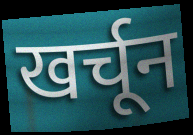
खर्चून